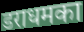
डराधमका